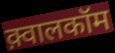
क़्वालकॉम